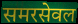
समरसेवल